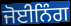
ਜੋਈਨਿੰਗ